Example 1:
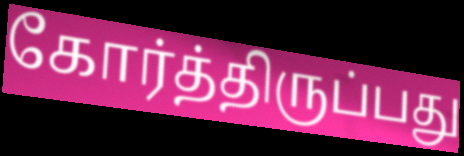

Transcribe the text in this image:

கோர்த்திருப்பது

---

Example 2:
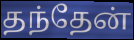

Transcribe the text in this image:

தந்தேன்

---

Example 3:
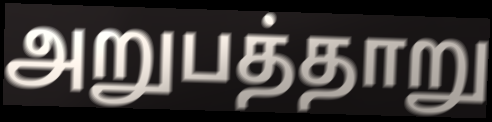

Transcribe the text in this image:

அறுபத்தாறு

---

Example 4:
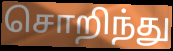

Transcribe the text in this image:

சொறிந்து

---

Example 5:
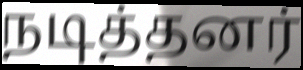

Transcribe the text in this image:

நடித்தனர்